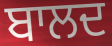
ਬਾਲਦ